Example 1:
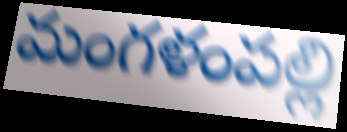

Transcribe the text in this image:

మంగళంపల్లి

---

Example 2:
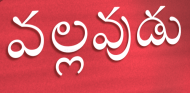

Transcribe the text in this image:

వల్లవుడు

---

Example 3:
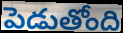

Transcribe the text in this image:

పెడుతోంది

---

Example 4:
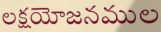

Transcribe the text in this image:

లక్షయోజనముల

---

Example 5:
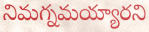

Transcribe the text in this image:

నిమగ్నమయ్యారని